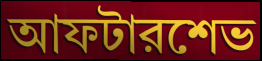
আফটারশেভ